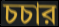
চচার